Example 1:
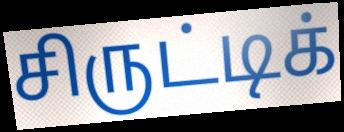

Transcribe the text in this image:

சிருட்டிக்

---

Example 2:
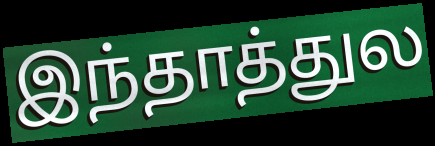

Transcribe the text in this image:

இந்தாத்துல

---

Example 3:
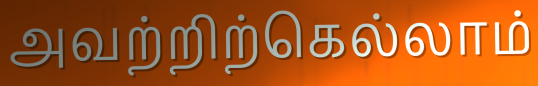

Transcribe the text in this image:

அவற்றிற்கெல்லாம்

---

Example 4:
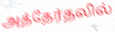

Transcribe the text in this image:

அத்தேர்தலில்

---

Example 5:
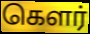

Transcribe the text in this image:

கௌர்